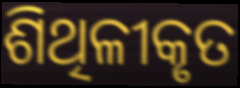
ଶିଥିଳୀକୃତ